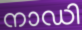
നാഡി